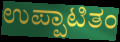
ಉಪ್ಪಾಟಿತಂ